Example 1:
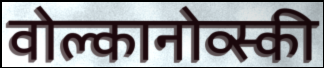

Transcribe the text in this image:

वोल्कानोव्स्की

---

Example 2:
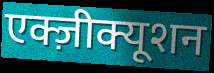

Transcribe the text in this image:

एक्ज़ीक्यूशन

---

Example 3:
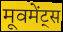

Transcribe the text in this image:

मूवमेंट्स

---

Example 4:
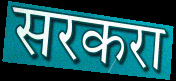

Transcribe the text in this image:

सरकरा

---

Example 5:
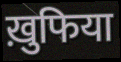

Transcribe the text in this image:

ख़ुफिया